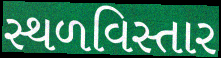
સ્થળવિસ્તાર